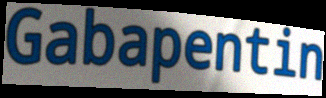
Gabapentin